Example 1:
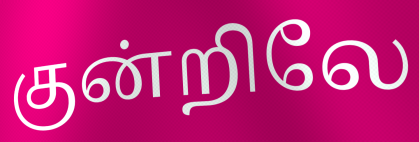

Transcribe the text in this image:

குன்றிலே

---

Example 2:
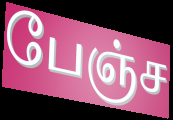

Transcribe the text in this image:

பேஞ்ச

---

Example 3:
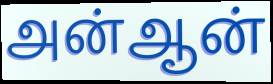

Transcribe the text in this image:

அன்ஆன்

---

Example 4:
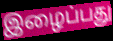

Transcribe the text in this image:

இழைப்பது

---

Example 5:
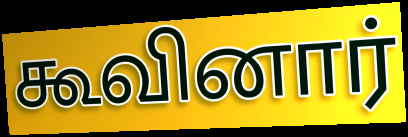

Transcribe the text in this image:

கூவினார்